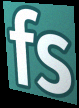
fs